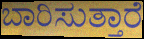
ಬಾರಿಸುತ್ತಾರೆ